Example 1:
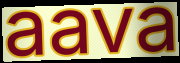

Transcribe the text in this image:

aava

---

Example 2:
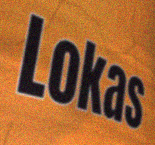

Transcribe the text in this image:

Lokas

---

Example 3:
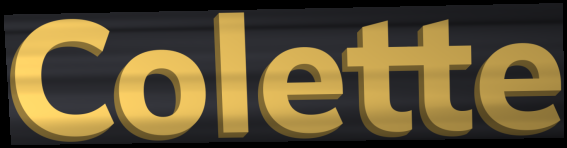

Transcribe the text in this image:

Colette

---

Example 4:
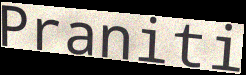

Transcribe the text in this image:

Praniti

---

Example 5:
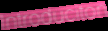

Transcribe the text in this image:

Introduciton